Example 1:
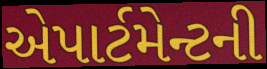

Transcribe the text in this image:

એપાર્ટમેન્ટની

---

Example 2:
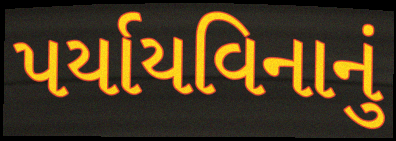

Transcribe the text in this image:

પર્યાયવિનાનું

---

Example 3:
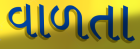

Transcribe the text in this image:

વાળતા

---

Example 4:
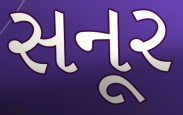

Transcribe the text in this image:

સનૂર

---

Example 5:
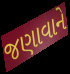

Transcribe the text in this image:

જણાવાને